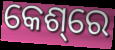
କେଶ୍‌ରେ